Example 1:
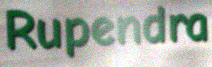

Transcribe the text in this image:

Rupendra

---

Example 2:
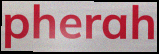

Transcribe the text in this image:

pherah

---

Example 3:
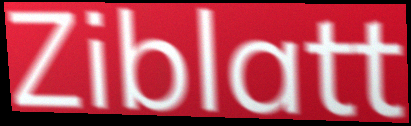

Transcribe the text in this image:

Ziblatt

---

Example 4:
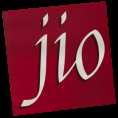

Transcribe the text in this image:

jio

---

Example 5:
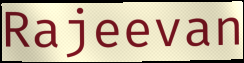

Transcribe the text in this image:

Rajeevan